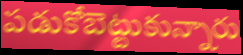
పడుకోబెట్టుకున్నారు